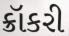
ક્રૉકરી